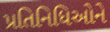
પ્રતિનિધિઓને